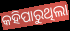
କହିପାରୁଥିଲା